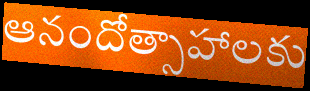
ఆనందోత్సాహాలకు